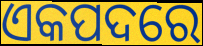
ଏକପଦରେ